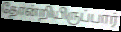
தோன்றியிருப்பார்